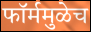
फॉर्ममुळेच